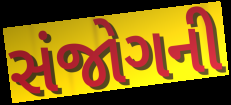
સંજોગની